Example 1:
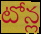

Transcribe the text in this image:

టోన్ల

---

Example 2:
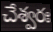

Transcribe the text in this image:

చేశ్వరః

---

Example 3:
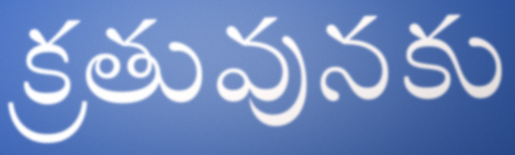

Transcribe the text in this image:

క్రతువునకు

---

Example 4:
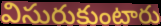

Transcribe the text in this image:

విసురుకుంటారు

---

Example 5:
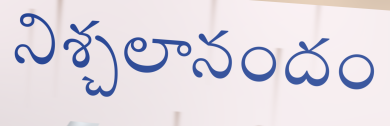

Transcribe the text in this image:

నిశ్చలానందం